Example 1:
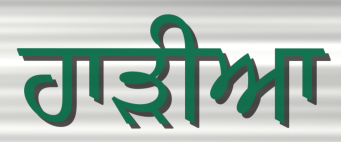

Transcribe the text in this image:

ਹਾੜੀਆ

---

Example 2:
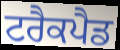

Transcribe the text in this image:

ਟਰੈਕਪੈਡ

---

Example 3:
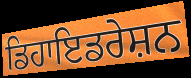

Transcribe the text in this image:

ਡਿਹਾਇਡਰੇਸ਼ਨ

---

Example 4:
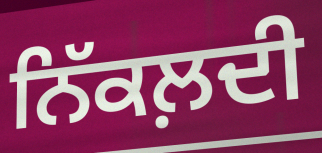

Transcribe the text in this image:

ਨਿੱਕਲ਼ਦੀ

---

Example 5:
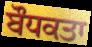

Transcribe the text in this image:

ਬੌਧਕਤਾ